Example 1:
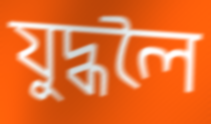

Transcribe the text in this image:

যুদ্ধলৈ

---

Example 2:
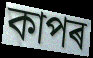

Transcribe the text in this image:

কাপৰ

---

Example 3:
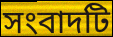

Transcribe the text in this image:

সংবাদটি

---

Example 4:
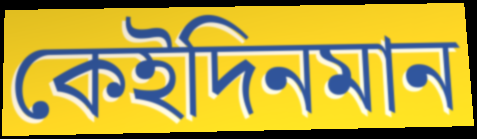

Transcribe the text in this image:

কেইদিনমান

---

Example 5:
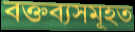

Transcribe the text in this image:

বক্তব্যসমূহত